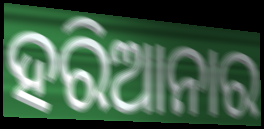
ହରିଆନାର